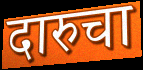
दारुचा